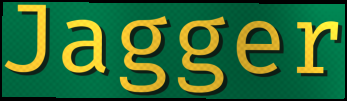
Jagger